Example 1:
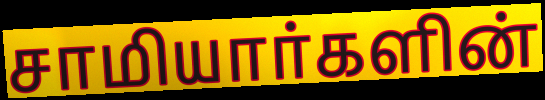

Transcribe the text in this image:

சாமியார்களின்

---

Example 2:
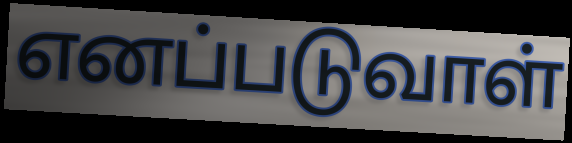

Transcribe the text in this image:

எனப்படுவாள்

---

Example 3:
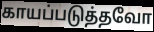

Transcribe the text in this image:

காயப்படுத்தவோ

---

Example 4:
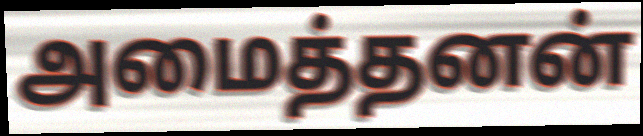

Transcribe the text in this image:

அமைத்தனன்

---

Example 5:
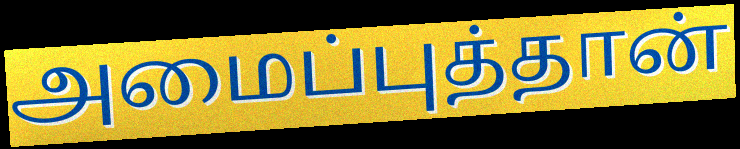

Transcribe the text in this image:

அமைப்புத்தான்